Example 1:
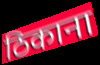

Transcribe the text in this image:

ठिकाना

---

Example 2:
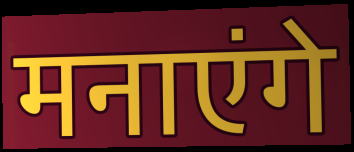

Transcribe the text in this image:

मनाएंगे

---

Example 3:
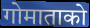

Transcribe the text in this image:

गोमाताको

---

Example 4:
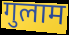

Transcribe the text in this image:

गुलाम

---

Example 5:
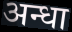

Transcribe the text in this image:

अन्धा